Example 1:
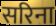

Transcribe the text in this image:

सरिना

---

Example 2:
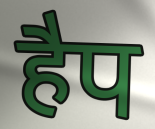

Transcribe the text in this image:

हैप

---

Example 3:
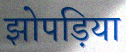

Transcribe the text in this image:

झोपड़िया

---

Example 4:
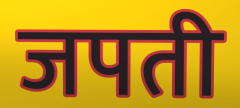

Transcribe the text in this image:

जपती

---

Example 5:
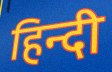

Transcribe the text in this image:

हिन्दी